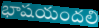
భాషయందలి